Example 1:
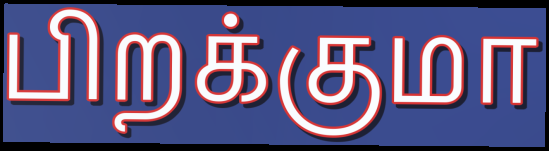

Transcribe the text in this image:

பிறக்குமா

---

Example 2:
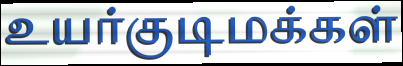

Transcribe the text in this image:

உயர்குடிமக்கள்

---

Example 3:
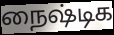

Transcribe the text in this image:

நைஷ்டிக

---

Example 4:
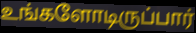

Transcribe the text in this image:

உங்களோடிருப்பார்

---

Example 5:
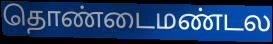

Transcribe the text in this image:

தொண்டைமண்டல